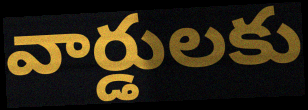
వార్డులకు